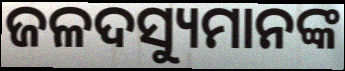
ଜଳଦସ୍ୟୁମାନଙ୍କ